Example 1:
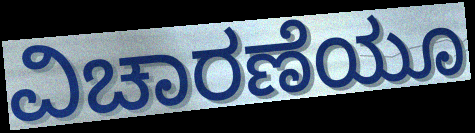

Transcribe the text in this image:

ವಿಚಾರಣೆಯೂ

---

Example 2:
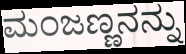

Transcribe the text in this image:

ಮಂಜಣ್ಣನನ್ನು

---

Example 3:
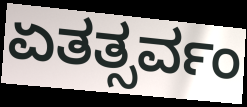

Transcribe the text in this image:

ಏತತ್ಸರ್ವಂ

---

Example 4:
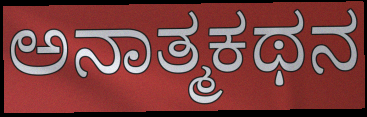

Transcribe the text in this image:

ಅನಾತ್ಮಕಥನ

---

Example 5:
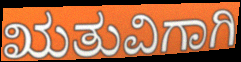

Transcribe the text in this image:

ಋತುವಿಗಾಗಿ